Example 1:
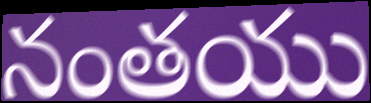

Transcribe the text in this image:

నంతయు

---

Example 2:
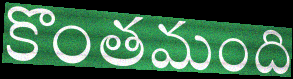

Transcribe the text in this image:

కొంతమంది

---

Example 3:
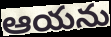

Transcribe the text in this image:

ఆయను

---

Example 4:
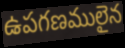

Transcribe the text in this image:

ఉపగణములైన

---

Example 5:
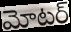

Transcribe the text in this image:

మోటర్